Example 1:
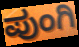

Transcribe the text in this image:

ಪುಂಗಿ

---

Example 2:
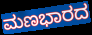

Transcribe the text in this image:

ಮಣಭಾರದ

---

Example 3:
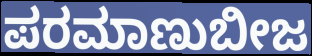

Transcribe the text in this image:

ಪರಮಾಣುಬೀಜ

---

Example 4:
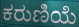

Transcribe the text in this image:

ಕರುಣಿಯೆ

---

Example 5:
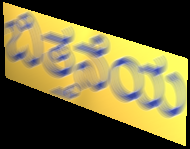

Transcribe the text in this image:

ಬಿತ್ತನೆಯ